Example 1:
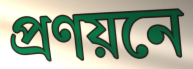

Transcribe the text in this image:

প্রণয়নে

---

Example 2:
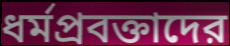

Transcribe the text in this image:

ধর্মপ্রবক্তাদের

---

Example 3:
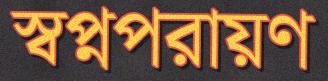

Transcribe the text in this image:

স্বপ্নপরায়ণ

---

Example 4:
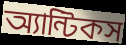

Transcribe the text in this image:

অ্যান্টিকস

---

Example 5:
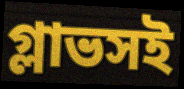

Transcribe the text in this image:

গ্লাভসই